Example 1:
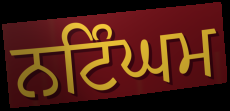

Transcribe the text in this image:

ਨਟਿੰਘਮ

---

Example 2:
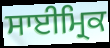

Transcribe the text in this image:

ਸਾਈਮ੍ਰਿਕ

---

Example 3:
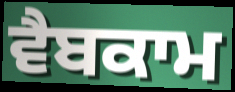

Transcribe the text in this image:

ਵੈਬਕਾਮ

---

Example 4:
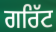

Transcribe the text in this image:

ਗਰਿੱਟ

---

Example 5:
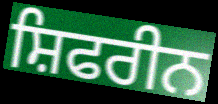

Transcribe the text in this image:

ਸ਼ਿਫਰੀਨ